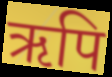
ऋपि